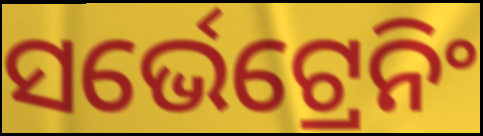
ସର୍ଭେଟ୍ରେନିଂ